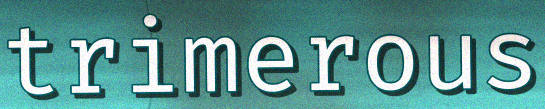
trimerous